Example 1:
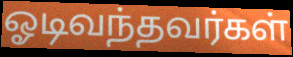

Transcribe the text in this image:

ஓடிவந்தவர்கள்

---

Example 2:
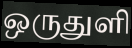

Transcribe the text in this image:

ஒருதுளி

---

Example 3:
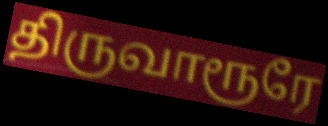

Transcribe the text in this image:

திருவாரூரே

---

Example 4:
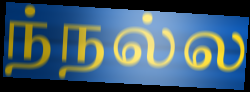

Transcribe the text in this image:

ந்நல்ல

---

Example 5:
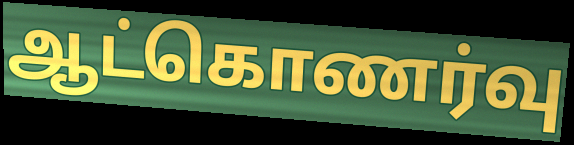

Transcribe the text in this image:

ஆட்கொணர்வு